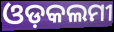
ଓଡ଼କଲମୀ